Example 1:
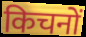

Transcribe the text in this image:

किचनों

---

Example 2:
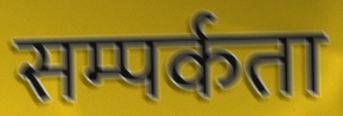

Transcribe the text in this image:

सम्पर्कता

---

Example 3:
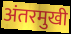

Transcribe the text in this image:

अंतरमुखी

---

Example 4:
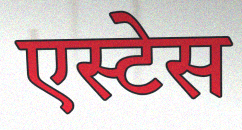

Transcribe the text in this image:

एस्टेस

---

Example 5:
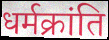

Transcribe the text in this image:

धर्मक्रांति